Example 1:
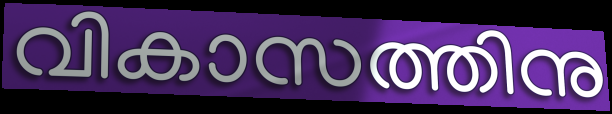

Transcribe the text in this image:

വികാസത്തിനു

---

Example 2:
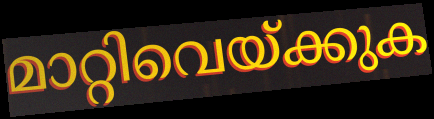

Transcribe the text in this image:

മാറ്റിവെയ്ക്കുക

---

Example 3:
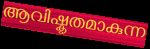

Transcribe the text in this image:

ആവിഷ്കൃതമാകുന്ന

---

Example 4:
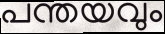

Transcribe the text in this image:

പന്തയവും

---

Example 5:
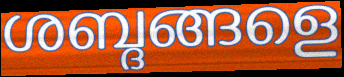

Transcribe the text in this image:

ശബ്ദങ്ങളെ